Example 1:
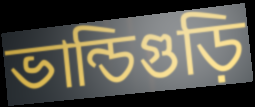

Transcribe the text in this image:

ভান্ডিগুড়ি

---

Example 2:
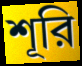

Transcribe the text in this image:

শূরি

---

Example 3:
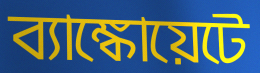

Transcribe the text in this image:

ব্যাঙ্কোয়েটে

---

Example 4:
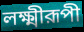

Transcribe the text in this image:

লক্ষ্মীরূপী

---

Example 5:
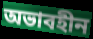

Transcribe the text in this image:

অভাবহীন